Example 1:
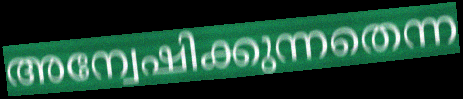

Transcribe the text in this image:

അന്വേഷിക്കുന്നതെന്ന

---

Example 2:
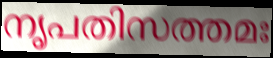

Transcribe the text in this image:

നൃപതിസത്തമഃ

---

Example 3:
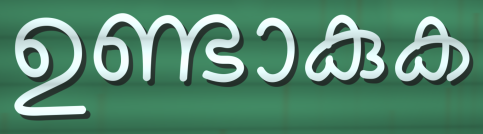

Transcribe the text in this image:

ഉണ്ടാകുക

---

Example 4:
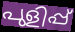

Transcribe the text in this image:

പുളിപ്പ്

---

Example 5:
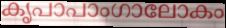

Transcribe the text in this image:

കൃപാപാംഗാലോകം